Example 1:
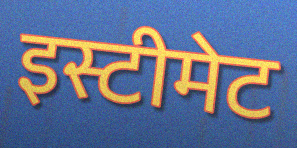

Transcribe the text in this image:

इस्टीमेट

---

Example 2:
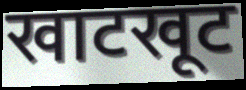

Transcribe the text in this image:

खाटखूट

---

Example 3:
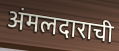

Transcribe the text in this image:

अंमलदाराची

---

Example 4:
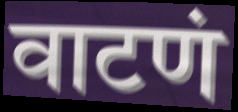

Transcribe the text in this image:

वाटणं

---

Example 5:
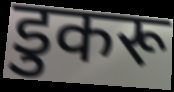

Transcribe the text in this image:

डुकरू